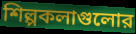
শিল্পকলাগুলোর